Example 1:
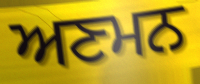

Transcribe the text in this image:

ਅਣਮਨ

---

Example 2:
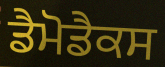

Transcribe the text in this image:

ਡੈਮੋਡੈਕਸ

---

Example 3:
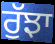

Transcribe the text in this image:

ਰੁੱਝਾ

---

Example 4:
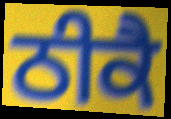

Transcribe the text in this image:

ਠੀਕੈ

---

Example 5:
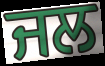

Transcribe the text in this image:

ਜਲ